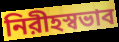
নিরীহস্বভাব